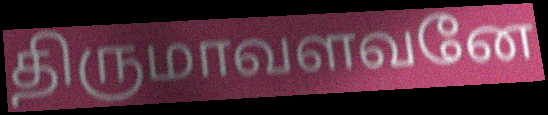
திருமாவளவனே